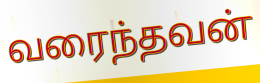
வரைந்தவன்